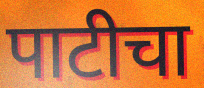
पाटीचा